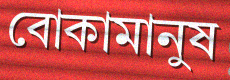
বোকামানুষ